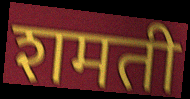
शमती